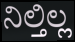
ನಿಲ್ತಿಲ್ಲ